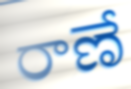
రాణే